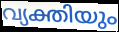
വ്യക്തിയും